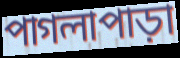
পাগলাপাড়া